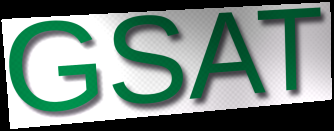
GSAT